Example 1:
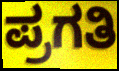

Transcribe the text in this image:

ಪ್ರಗತಿ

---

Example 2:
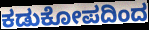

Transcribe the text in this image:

ಕಡುಕೋಪದಿಂದ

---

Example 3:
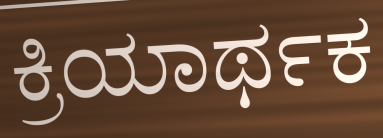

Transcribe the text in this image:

ಕ್ರಿಯಾರ್ಥಕ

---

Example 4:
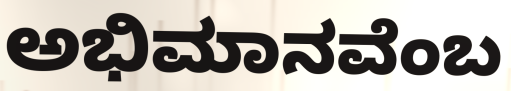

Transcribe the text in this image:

ಅಭಿಮಾನವೆಂಬ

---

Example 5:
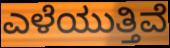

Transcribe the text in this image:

ಎಳೆಯುತ್ತಿವೆ